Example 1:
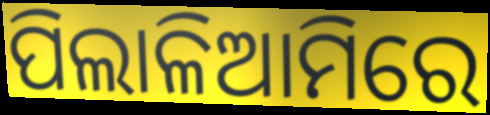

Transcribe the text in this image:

ପିଲାଳିଆମିରେ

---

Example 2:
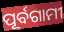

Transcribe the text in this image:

ପୂର୍ବଗାମୀ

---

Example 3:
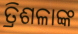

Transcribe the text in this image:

ତ୍ରିଶଳାଙ୍କ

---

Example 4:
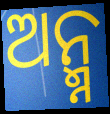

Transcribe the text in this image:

ଅନ୍ମ୍ନ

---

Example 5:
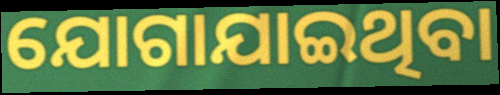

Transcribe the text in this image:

ଯୋଗାଯାଇଥିବା